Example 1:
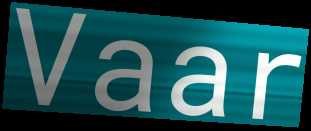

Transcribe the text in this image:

Vaar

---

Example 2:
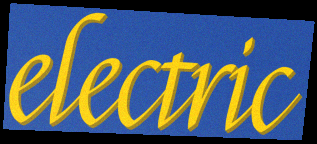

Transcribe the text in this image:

electric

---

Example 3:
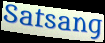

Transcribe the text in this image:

Satsang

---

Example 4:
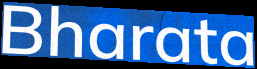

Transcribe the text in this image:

Bharata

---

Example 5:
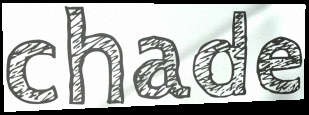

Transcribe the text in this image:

chade